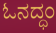
ಓನದ್ಧಂ